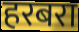
हरबरा